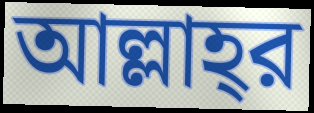
আল্লাহ্‌র